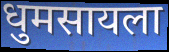
धुमसायला